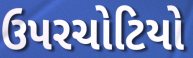
ઉપરચોટિયો